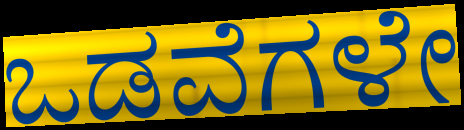
ಒಡವೆಗಳೇ